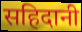
सहिदानी